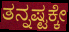
ತನ್ನಷ್ಟಕ್ಕೇ